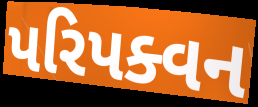
પરિપક્વન